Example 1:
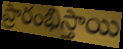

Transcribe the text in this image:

ప్రారంభిస్తాయి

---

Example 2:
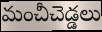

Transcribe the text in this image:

మంచీచెడ్డలు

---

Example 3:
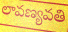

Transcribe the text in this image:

లావణ్యవతి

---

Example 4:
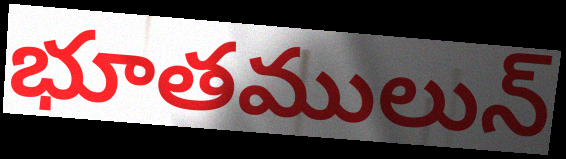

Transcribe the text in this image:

భూతములున్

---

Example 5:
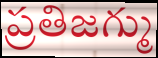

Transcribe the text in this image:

ప్రతిజగ్ము